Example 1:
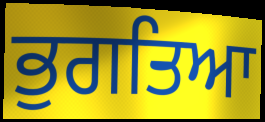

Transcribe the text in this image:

ਭੁਗਤਿਆ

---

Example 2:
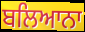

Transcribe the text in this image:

ਬਲਿਆਨਾ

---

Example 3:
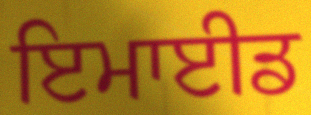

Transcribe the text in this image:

ਇਮਾਈਡ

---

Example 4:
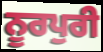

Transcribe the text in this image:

ਨੂਰਪੁਰੀ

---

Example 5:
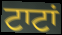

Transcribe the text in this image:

ਟਾਟਾਂ